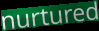
nurtured